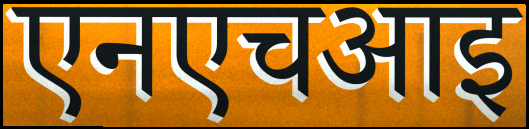
एनएचआइ